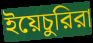
ইয়েচুরিরা